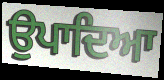
ਉਪਾਦਿਆ